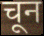
चून